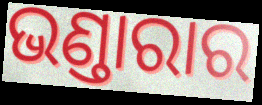
ଭଣ୍ଡାରାର